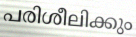
പരിശീലിക്കും